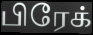
பிரேக்